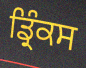
ਡ੍ਰਿੰਕਸ